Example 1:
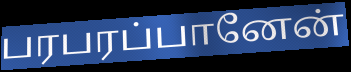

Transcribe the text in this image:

பரபரப்பானேன்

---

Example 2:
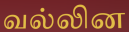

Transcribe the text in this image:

வல்லின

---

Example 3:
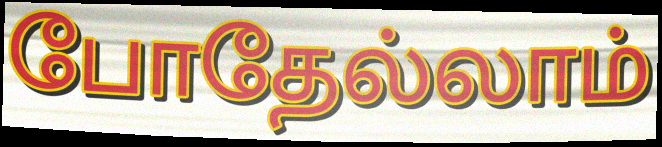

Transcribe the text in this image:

போதேல்லாம்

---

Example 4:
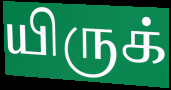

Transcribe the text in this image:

யிருக்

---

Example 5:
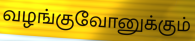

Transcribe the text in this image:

வழங்குவோனுக்கும்